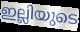
ഇല്ലിയുടെ